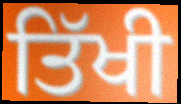
ਤਿੱਖੀ